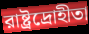
রাষ্ট্রদ্রোহীতা